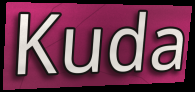
Kuda